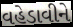
વહેડાવીને